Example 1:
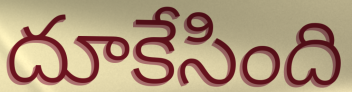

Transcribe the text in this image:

దూకేసింది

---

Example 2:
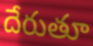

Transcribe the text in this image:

దేరుతూ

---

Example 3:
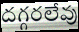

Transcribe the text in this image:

దగ్గరలేవు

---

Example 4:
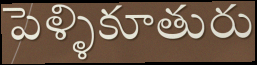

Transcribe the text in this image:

పెళ్ళికూతురు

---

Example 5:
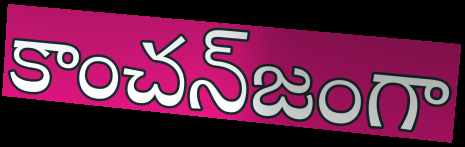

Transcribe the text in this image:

కాంచన్‌జంగా